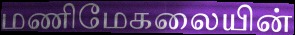
மணிமேகலையின்